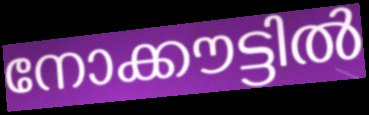
നോക്കൗട്ടിൽ